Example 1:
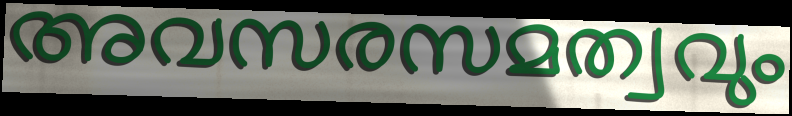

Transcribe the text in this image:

അവസരസമത്വവും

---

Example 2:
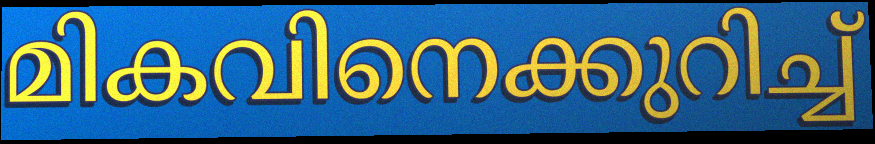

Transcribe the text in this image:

മികവിനെക്കുറിച്ച്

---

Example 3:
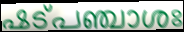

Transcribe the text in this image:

ഷട്പഞ്ചാശഃ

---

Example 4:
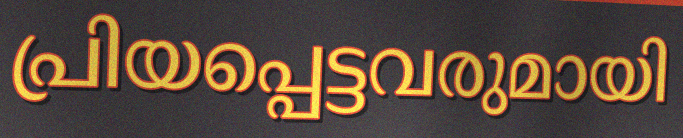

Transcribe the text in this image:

പ്രിയപ്പെട്ടവരുമായി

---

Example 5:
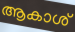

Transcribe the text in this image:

ആകാശ്